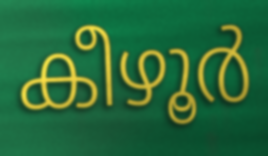
കീഴൂർ